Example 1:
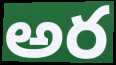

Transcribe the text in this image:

అర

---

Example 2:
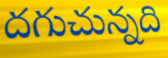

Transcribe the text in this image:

దగుచున్నది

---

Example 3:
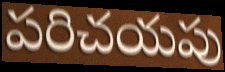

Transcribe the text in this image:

పరిచయపు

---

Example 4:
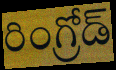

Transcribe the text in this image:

రింగ్రోడ్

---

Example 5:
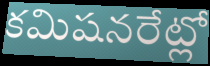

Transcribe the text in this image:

కమిషనరేట్లో